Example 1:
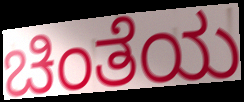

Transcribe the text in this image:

ಚಿಂತೆಯ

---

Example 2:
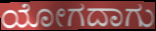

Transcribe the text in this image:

ಯೋಗದಾಗು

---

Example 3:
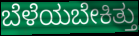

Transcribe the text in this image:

ಬೆಳೆಯಬೇಕಿತ್ತು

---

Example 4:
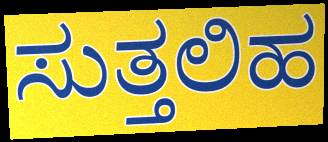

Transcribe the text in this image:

ಸುತ್ತಲಿಹ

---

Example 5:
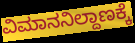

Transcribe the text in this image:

ವಿಮಾನನಿಲ್ದಾಣಕ್ಕೆ